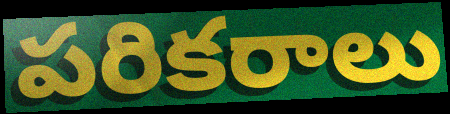
పరికరాలు